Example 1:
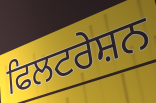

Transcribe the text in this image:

ਫਿਲਟਰੇਸ਼ਨ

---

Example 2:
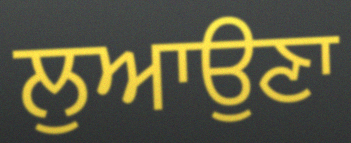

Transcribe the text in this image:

ਲੁਆਉਣਾ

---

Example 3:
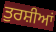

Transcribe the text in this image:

ਤੁਰਸ਼ੀਆਂ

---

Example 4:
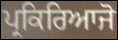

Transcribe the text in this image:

ਪ੍ਰਕਿਰਿਆਜੋ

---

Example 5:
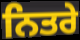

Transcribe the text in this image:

ਨਿਤਰੇ